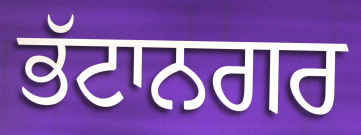
ਭੱਟਾਨਗਰ